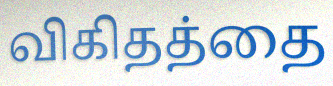
விகிதத்தை